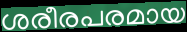
ശരീരപരമായ